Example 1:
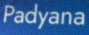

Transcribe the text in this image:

Padyana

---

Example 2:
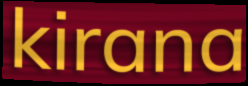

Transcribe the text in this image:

kirana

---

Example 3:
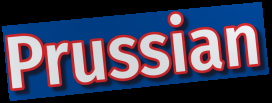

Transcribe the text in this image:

Prussian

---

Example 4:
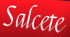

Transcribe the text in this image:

Salcete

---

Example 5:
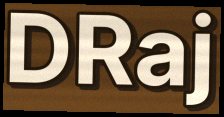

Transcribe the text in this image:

DRaj